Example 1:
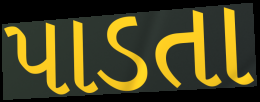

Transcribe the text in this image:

પાડતા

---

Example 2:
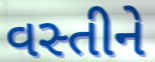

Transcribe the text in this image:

વસ્તીને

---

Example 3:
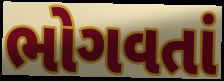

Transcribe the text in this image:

ભોગવતાં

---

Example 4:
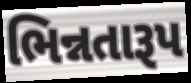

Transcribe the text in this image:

ભિન્નતારૂપ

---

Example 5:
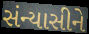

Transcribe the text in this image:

સંન્યાસીને